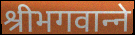
श्रीभगवान्ने